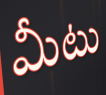
మీటు